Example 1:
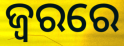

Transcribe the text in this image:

ଜ୍ବରରେ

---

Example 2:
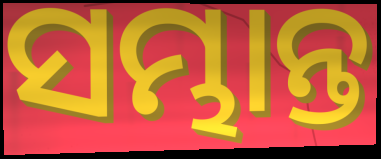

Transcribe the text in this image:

ସମ୍ଭାନ୍ତ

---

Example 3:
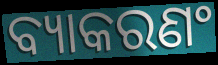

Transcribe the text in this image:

ବ୍ୟାକରଣଂ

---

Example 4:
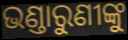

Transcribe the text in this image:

ଭଣ୍ଡାରୁଣୀଙ୍କୁ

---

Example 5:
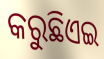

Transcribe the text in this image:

କରୁଛିଏଇ